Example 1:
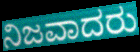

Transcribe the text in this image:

ನಿಜವಾದರು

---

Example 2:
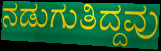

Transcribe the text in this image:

ನಡುಗುತಿದ್ದವು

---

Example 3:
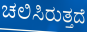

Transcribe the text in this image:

ಚಲಿಸಿರುತ್ತದೆ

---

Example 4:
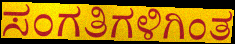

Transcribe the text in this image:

ಸಂಗತಿಗಳಿಗಿಂತ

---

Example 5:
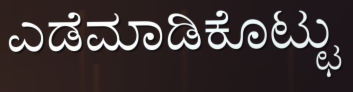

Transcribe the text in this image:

ಎಡೆಮಾಡಿಕೊಟ್ಟು